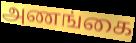
அணங்கை